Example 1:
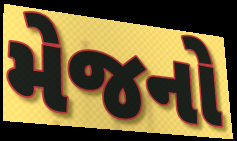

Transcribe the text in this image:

મેજનો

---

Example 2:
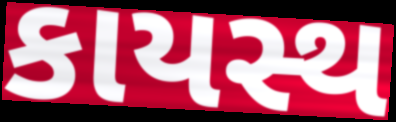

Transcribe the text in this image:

કાયસ્થ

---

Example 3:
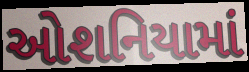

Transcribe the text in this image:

ઓશનિયામાં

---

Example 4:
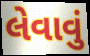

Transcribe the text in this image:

લેવાવું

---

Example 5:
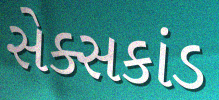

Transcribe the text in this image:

સેક્સકાંડ